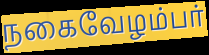
நகைவேழம்பர்